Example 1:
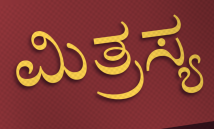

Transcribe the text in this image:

ಮಿತ್ರಸ್ಯ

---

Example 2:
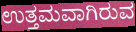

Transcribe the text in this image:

ಉತ್ತಮವಾಗಿರುವ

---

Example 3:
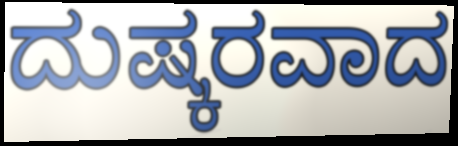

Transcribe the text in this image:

ದುಷ್ಕರವಾದ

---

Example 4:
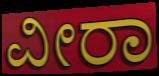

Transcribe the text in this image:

ವೀರಾ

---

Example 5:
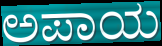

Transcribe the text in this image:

ಅಪಾಯ